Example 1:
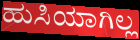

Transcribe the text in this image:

ಹುಸಿಯಾಗಿಲ್ಲ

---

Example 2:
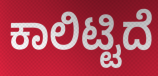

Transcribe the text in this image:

ಕಾಲಿಟ್ಟಿದೆ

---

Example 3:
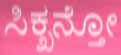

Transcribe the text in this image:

ಸಿಕ್ಖನ್ತೋ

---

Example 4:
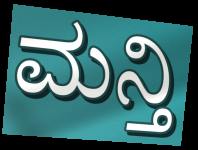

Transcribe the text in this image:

ಮನ್ತಿ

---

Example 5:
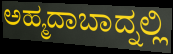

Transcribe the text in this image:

ಅಹ್ಮದಾಬಾದ್ನಲ್ಲಿ